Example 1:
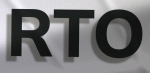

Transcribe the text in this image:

RTO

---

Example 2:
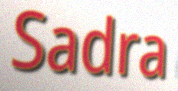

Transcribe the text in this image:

Sadra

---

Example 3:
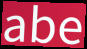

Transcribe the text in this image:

abe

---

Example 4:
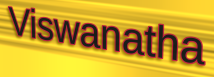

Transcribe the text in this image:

Viswanatha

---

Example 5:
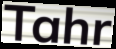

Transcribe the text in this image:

Tahr